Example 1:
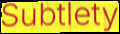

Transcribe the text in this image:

Subtlety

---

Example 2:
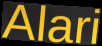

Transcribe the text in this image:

Alari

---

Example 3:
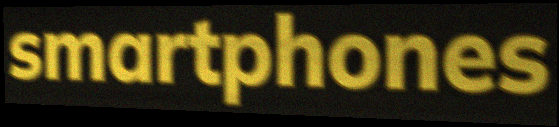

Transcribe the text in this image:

smartphones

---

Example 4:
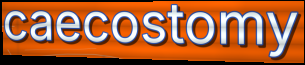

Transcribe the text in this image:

caecostomy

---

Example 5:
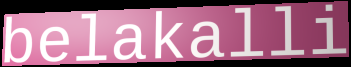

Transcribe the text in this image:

belakalli